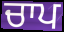
ਚਾਪ